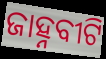
ଜାହ୍ନବୀଟି